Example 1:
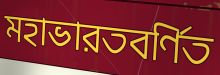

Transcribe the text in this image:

মহাভারতবর্ণিত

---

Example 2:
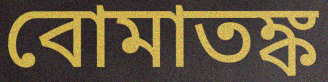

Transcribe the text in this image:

বোমাতঙ্ক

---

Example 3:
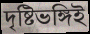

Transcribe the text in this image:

দৃষ্টিভঙ্গিই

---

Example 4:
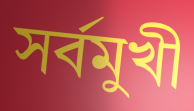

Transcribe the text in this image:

সর্বমুখী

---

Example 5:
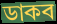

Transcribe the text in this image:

ডাকব